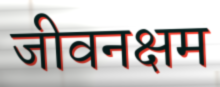
जीवनक्षम